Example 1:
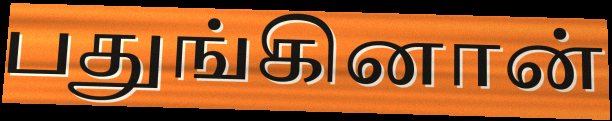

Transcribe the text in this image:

பதுங்கினான்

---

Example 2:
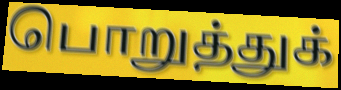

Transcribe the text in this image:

பொறுத்துக்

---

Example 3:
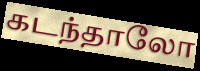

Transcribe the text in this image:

கடந்தாலோ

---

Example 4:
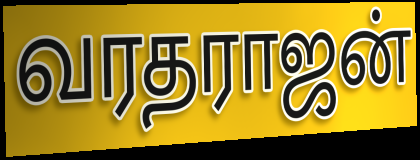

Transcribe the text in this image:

வரதராஜன்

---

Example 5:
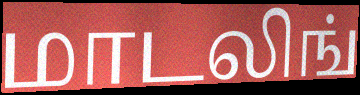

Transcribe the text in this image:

மாடலிங்